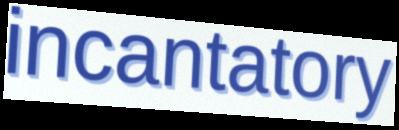
incantatory